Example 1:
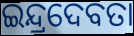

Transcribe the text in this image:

ଇନ୍ଦ୍ରଦେବତା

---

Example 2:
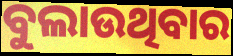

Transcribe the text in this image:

ବୁଲାଉଥିବାର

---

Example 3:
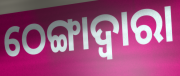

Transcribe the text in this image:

ଠେଙ୍ଗାଦ୍ୱାରା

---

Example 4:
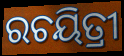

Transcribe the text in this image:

ରଚୟିତ୍ରୀ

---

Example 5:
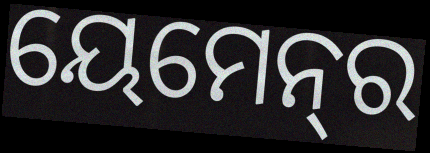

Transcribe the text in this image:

ୟେମେନ୍‌ର